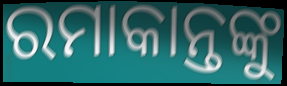
ରମାକାନ୍ତଙ୍କୁ